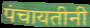
पंचायतीनी